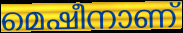
മെഷീനാണ്